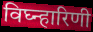
विघ्न्हारिणी